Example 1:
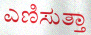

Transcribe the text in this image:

ಎಣಿಸುತ್ತಾ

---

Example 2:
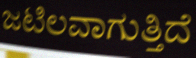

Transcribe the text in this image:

ಜಟಿಲವಾಗುತ್ತಿದೆ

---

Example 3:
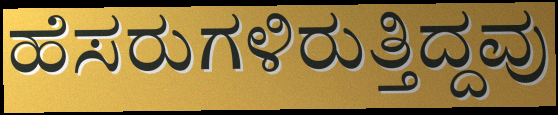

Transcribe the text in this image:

ಹೆಸರುಗಳಿರುತ್ತಿದ್ದವು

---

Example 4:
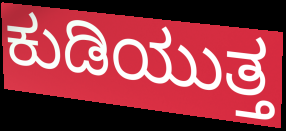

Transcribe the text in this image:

ಕುಡಿಯುತ್ತ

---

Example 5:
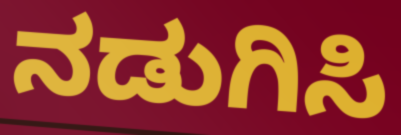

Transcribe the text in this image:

ನಡುಗಿಸಿ